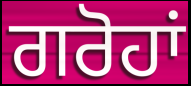
ਗਰੋਹਾਂ